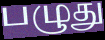
பழுது